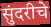
सुंदरीचे